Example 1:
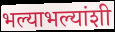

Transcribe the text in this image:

भल्याभल्यांशी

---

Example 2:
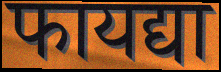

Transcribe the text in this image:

फायद्या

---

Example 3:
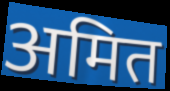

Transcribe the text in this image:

अमित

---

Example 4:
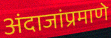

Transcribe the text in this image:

अंदाजांप्रमाणे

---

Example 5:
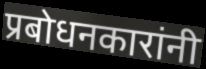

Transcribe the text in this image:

प्रबोधनकारांनी